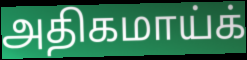
அதிகமாய்க்